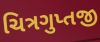
ચિત્રગુપ્તજી